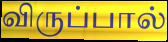
விருப்பால்